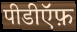
पीडीऍफ़